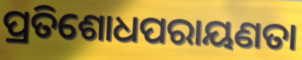
ପ୍ରତିଶୋଧପରାୟଣତା